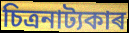
চিত্ৰনাট্যকাৰ